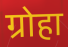
ग्रोहा